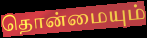
தொன்மையும்